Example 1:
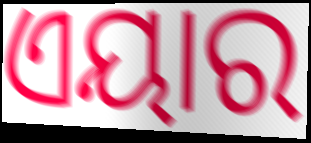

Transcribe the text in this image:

ଏୟାର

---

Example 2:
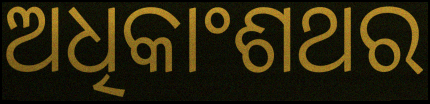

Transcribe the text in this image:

ଅଧିକାଂଶଥର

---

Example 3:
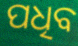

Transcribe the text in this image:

ପଧିବ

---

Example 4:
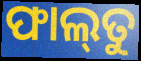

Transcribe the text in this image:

ଫାଲ୍‌ତୁ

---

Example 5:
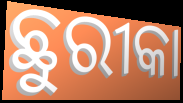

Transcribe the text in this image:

ଛୁରୀକା